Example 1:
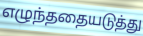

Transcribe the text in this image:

எழுந்ததையடுத்து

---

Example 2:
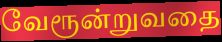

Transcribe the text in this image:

வேரூன்றுவதை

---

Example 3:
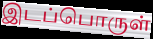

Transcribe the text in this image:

இடப்பொருள்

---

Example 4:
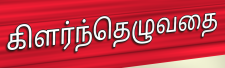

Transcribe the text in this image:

கிளர்ந்தெழுவதை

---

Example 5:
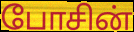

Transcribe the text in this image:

போசின்